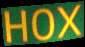
HOX